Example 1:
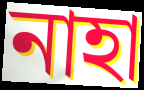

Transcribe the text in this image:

নাহা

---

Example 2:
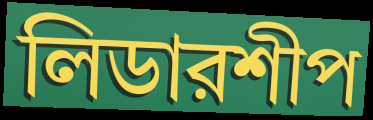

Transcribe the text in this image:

লিডারশীপ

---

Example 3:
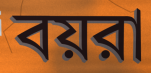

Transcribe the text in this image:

বয়রা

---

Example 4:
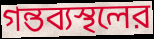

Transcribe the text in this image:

গন্তব্যস্থলের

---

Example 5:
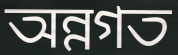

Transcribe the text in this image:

অন্নগত